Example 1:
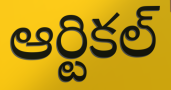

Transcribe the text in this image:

ఆర్టికల్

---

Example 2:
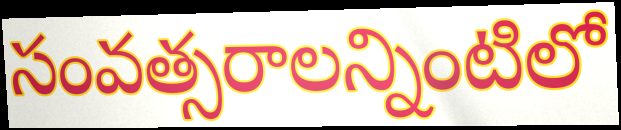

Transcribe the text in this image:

సంవత్సరాలన్నింటిలో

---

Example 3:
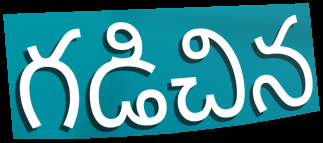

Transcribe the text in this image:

గడిచిన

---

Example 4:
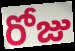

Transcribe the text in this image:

రోజు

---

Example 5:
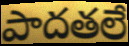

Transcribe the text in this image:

పాదతలే